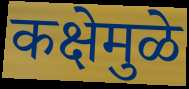
कक्षेमुळे